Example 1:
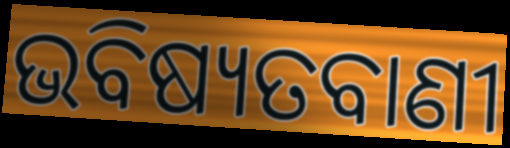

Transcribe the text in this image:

ଭବିଷ୍ୟତବାଣୀ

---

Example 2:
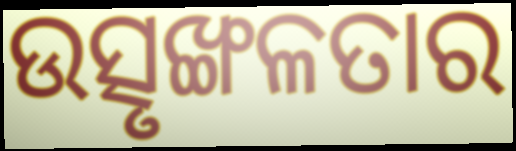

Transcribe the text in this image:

ଉତ୍ସୃଙ୍ଖଳତାର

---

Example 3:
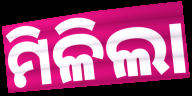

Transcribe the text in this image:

ମିଳିଲା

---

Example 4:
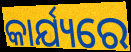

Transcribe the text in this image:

କାର୍ଯ୍ୟରେ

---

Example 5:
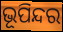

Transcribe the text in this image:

ଭୂପିନ୍ଦର